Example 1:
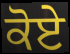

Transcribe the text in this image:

ਕੋਏ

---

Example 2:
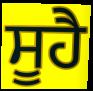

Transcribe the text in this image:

ਸੂਹੈ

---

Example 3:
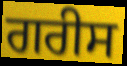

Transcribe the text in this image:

ਗਰੀਸ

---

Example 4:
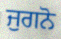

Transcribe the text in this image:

ਜੁਗਨੋ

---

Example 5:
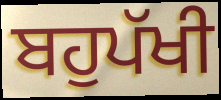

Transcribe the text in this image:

ਬਹੁਪੱਖੀ